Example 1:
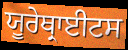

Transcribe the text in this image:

ਯੂਰੇਥ੍ਰਾਈਟਸ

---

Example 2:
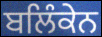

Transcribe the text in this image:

ਬਲਿੰਕੇਨ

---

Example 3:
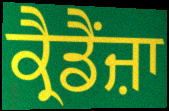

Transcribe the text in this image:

ਕ੍ਰੈਡੈਂਜ਼ਾ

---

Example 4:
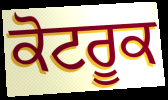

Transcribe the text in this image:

ਕੋਟਰੂਕ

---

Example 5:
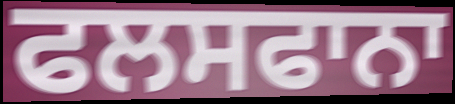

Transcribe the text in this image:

ਫਲਸਫਾਨਾ